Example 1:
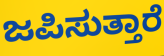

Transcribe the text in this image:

ಜಪಿಸುತ್ತಾರೆ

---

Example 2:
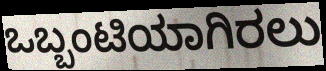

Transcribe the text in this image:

ಒಬ್ಬಂಟಿಯಾಗಿರಲು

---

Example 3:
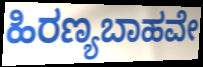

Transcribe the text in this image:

ಹಿರಣ್ಯಬಾಹವೇ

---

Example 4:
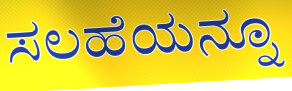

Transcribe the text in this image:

ಸಲಹೆಯನ್ನೂ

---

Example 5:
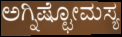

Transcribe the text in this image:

ಅಗ್ನಿಷ್ಟೋಮಸ್ಯ